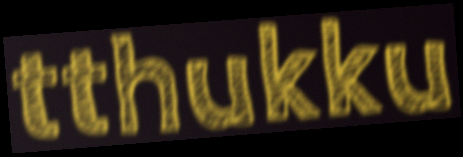
tthukku